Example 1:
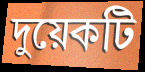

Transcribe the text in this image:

দুয়েকটি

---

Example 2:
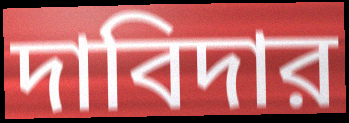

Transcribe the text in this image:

দাবিদার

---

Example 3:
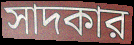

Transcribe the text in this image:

সাদকার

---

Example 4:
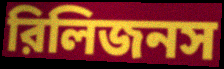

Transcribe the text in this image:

রিলিজনস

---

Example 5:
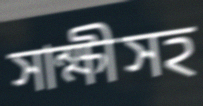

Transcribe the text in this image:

সাক্ষীসহ